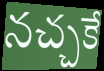
నచ్చకే